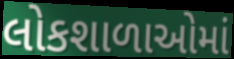
લોકશાળાઓમાં